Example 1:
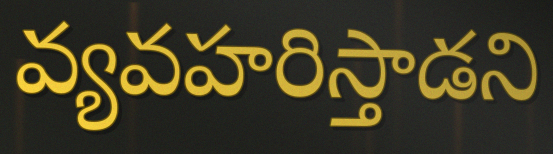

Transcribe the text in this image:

వ్యవహరిస్తాడని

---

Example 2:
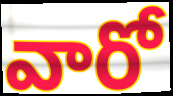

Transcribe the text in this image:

వారో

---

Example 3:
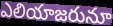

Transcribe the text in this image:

ఎలియాజరునూ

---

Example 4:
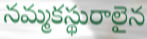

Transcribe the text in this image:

నమ్మకస్థురాలైన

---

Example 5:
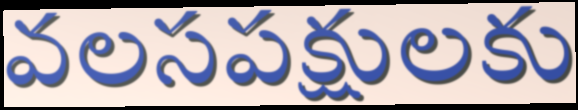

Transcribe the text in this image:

వలసపక్షులకు